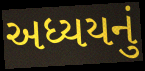
અધ્યયનું